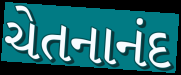
ચેતનાનંદ